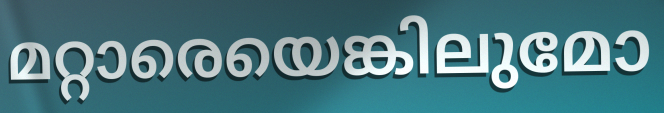
മറ്റാരെയെങ്കിലുമോ